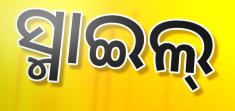
ସ୍ମାଇଲ୍